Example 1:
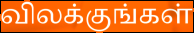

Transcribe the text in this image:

விலக்குங்கள்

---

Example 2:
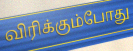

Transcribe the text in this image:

விரிக்கும்போது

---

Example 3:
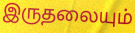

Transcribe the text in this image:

இருதலையும்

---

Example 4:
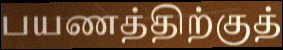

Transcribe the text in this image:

பயணத்திற்குத்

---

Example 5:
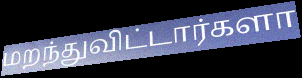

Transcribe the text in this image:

மறந்துவிட்டார்களா